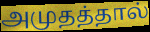
அமுதத்தால்